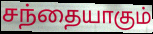
சந்தையாகும்